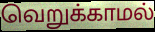
வெறுக்காமல்